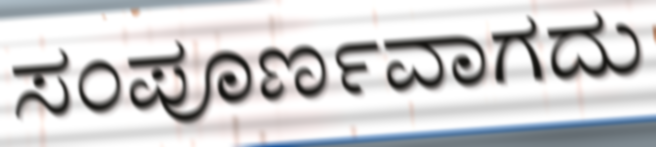
ಸಂಪೂರ್ಣವಾಗದು